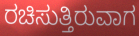
ರಚಿಸುತ್ತಿರುವಾಗ